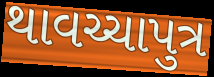
થાવચ્ચાપુત્ર